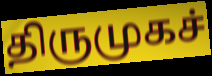
திருமுகச்